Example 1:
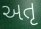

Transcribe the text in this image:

અતૃ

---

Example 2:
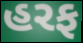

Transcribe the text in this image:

હરફ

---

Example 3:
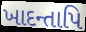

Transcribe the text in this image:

ખાદન્તાપિ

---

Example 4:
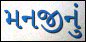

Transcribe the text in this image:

મનજીનું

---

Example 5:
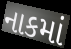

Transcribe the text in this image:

નાકમાં